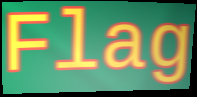
Flag